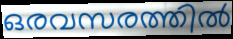
ഒരവസരത്തിൽ